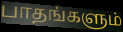
பாதங்களும்